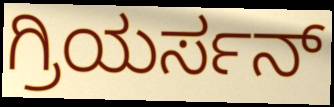
ಗ್ರಿಯರ್ಸನ್